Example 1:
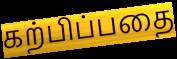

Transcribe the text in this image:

கற்பிப்பதை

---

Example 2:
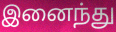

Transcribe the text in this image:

இனைந்து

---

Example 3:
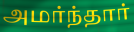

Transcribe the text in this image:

அமர்ந்தார்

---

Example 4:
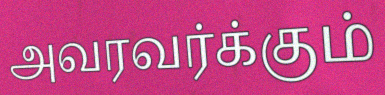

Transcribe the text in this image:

அவரவர்க்கும்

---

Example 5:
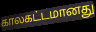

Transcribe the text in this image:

காலகட்டமானது